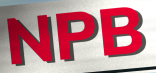
NPB